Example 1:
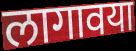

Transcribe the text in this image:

लागावया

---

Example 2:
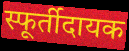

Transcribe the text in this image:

स्फूर्तीदायक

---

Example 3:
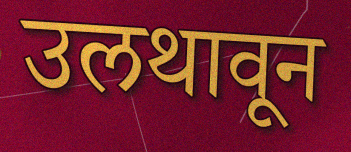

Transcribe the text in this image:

उलथावून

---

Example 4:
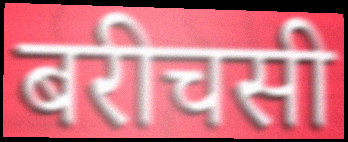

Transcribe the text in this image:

बरीचसी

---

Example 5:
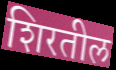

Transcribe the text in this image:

शिरतील